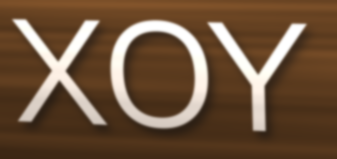
XOY